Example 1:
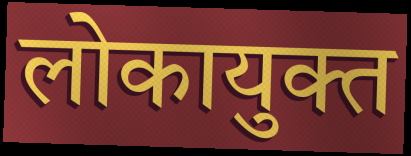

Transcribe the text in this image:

लोकायुक्त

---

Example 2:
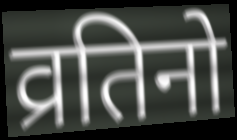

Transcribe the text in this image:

व्रतिनो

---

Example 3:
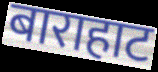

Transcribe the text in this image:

बाराहाट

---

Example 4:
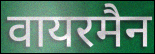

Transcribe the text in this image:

वायरमैन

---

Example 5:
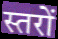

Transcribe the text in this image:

स्तरों